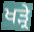
ਖੜ੍ਰੇ